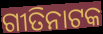
ଗୀତିନାଟକ